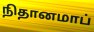
நிதானமாப்